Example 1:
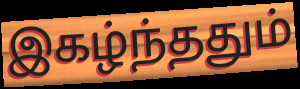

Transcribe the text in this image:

இகழ்ந்ததும்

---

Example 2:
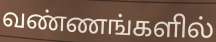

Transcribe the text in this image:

வண்ணங்களில்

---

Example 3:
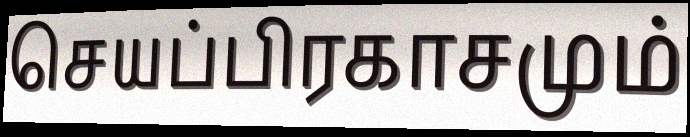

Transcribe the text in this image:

செயப்பிரகாசமும்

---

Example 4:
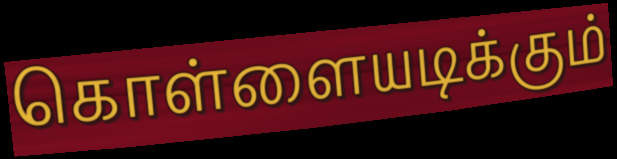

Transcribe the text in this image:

கொள்ளையடிக்கும்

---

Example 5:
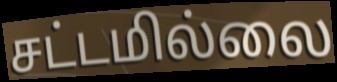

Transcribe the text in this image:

சட்டமில்லை